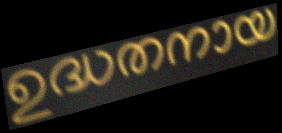
ഉദ്ധതനായ